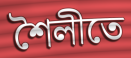
শৈলীতে